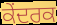
ਕੇਂਦਰਕ